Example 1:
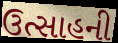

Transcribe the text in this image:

ઉત્સાહની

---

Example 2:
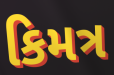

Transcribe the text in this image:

કિમત્ર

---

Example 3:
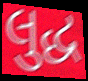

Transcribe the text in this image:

લુદ્ધ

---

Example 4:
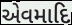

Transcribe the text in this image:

એવમાદિ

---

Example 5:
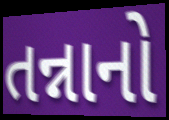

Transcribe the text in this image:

તન્નાનો